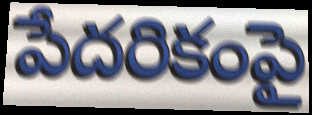
పేదరికంపై